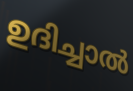
ഉദിച്ചാൽ